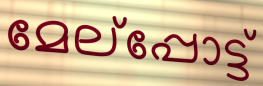
മേല്പ്പോട്ട്